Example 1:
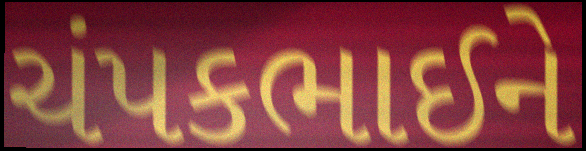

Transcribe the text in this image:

ચંપકભાઈને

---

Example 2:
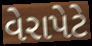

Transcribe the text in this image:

વેરાપેટે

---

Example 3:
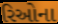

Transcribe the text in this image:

રિઓના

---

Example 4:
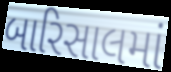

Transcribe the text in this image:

બારિસાલમાં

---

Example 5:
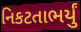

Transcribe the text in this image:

નિકટતાભર્યું